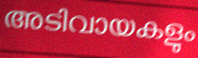
അടിവായകളും